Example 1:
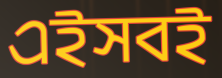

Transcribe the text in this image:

এইসবই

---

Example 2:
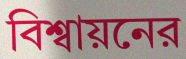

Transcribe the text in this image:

বিশ্বায়নের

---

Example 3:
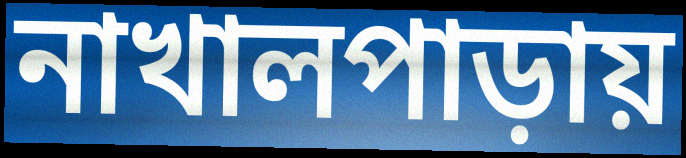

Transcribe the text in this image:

নাখালপাড়ায়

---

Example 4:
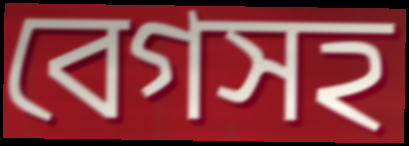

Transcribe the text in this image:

বেগসহ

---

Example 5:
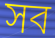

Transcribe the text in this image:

সব